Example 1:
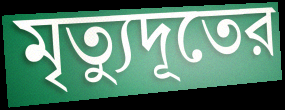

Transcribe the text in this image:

মৃত্যুদূতের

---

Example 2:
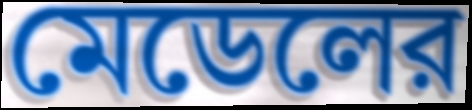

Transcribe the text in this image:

মেডেলের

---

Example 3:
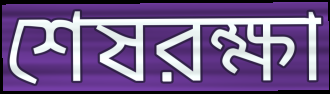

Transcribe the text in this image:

শেষরক্ষা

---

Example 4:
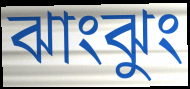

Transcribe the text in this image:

ঝাংঝুং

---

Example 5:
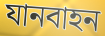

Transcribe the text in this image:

যানবাহন